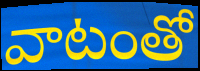
వాటంతో